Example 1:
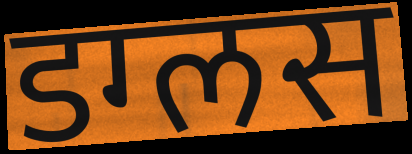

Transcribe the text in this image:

डग्लस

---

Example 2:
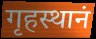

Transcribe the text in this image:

गृहस्थानं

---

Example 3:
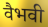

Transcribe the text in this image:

वैभवी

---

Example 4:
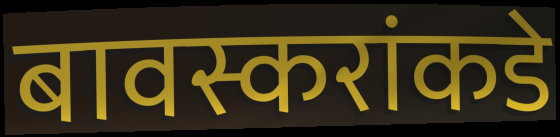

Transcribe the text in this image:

बावस्करांकडे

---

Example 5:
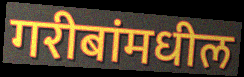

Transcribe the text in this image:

गरीबांमधील